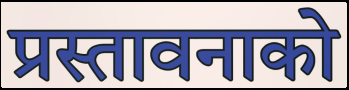
प्रस्तावनाको